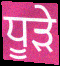
ਧੂੜੇ